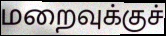
மறைவுக்குச்